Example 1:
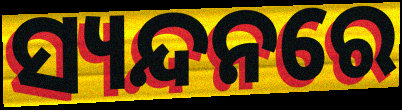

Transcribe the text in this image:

ସ୍ୟନ୍ଦନରେ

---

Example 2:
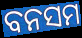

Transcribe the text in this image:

ବନସମ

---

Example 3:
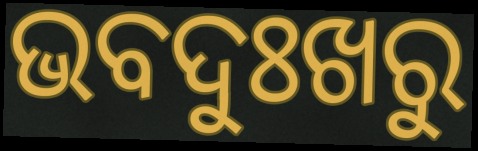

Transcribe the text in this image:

ଭବଦୁଃଖରୁ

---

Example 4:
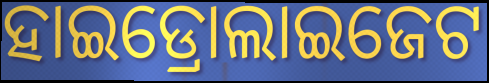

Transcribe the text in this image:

ହାଇଡ୍ରୋଲାଇଜେଟ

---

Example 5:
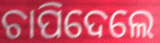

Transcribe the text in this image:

ଚାପିଦେଲେ